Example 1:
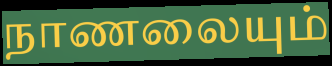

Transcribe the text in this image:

நாணலையும்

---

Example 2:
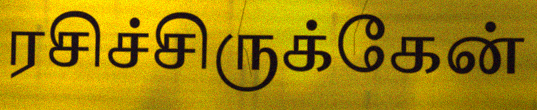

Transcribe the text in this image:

ரசிச்சிருக்கேன்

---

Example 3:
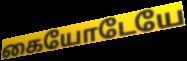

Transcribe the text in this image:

கையோடேயே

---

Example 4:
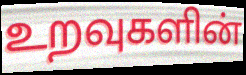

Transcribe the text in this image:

உறவுகளின்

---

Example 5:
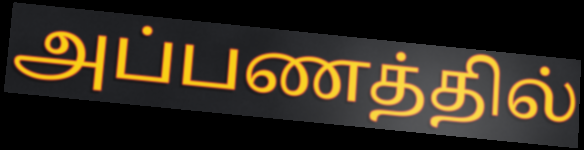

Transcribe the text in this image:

அப்பணத்தில்